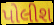
પોલીશ